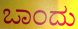
ಒಾಂದು